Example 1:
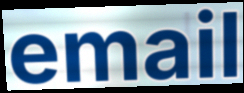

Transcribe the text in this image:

email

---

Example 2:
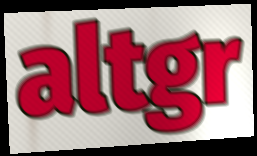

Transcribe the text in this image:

altgr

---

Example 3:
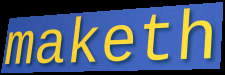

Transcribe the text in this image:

maketh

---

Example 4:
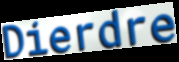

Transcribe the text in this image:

Dierdre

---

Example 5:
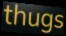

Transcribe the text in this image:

thugs